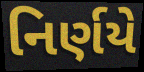
નિર્ણયે